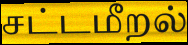
சட்டமீறல்